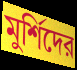
মুর্শিদের